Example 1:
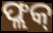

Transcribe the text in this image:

ଫ୍ଲକ୍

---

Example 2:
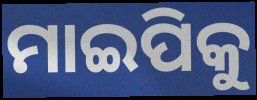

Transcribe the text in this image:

ମାଇପିକୁ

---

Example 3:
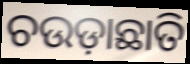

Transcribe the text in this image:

ଚଉଡ଼ାଛାତି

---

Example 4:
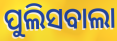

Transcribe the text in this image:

ପୁଲିସବାଲା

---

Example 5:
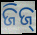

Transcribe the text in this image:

ଜିଜ୍